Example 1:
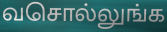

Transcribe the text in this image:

வசொல்லுங்க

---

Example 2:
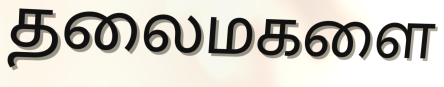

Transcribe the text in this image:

தலைமகளை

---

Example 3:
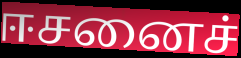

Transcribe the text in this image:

ஈசனைச்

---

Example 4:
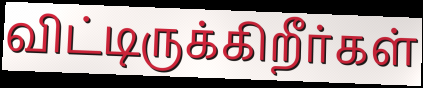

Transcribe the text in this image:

விட்டிருக்கிறீர்கள்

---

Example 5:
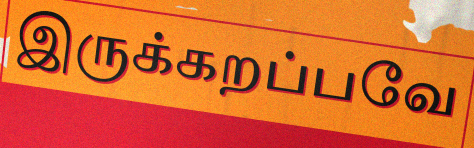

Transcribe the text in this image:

இருக்கறப்பவே